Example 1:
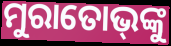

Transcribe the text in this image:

ମୁରାତୋଭ୍‌ଙ୍କୁ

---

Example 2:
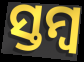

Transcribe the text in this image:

ସ୍ତମ୍ବ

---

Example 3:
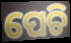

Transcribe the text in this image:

ପେଚି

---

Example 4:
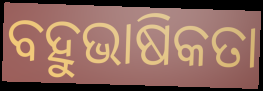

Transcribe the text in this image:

ବହୁଭାଷିକତା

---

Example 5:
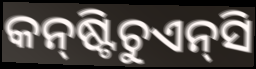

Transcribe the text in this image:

କନ୍‍ଷ୍ଟିଚୁଏନ୍‍ସି